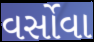
વર્સોવા